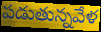
పడుతున్నవేళ